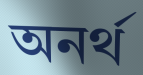
অনর্থ